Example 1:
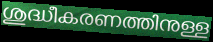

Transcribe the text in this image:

ശുദ്ധീകരണത്തിനുള്ള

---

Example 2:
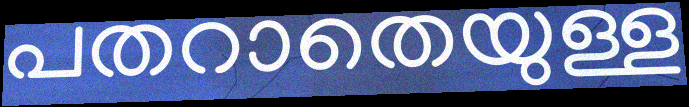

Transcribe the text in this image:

പതറാതെയുള്ള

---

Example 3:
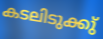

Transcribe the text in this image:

കടലിടുക്കു്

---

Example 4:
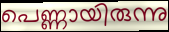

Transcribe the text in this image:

പെണ്ണായിരുന്നു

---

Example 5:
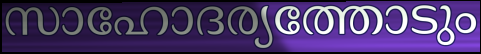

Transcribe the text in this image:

സാഹോദര്യത്തോടും